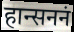
हान्सननं